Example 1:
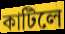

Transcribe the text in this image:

কাটিলে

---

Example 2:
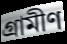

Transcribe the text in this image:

গ্ৰামীণ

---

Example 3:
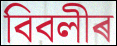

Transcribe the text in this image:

বিবলীৰ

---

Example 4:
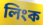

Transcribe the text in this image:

লিংক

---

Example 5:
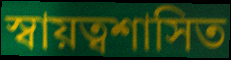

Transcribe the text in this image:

স্বায়ত্বশাসিত